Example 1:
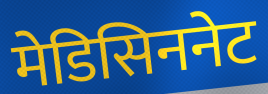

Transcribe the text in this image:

मेडिसिननेट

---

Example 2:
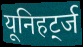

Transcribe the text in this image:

यूनिहर्ट्ज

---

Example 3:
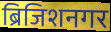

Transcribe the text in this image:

ब्रिजिशनगर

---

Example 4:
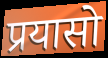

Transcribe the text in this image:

प्रयासो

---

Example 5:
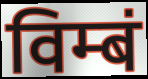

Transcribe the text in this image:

विम्बं